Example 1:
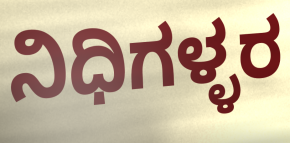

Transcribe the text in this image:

ನಿಧಿಗಳ್ಳರ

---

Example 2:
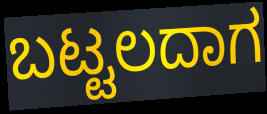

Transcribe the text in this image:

ಬಟ್ಟಲದಾಗ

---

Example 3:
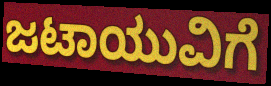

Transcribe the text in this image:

ಜಟಾಯುವಿಗೆ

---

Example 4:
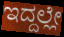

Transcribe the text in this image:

ಇದ್ದಲ್ಲೇ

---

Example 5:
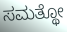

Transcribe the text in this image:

ಸಮತ್ಥೋ